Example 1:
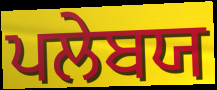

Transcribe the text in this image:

ਪਲੇਬਯ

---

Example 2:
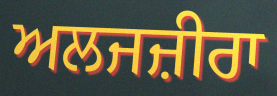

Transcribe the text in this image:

ਅਲਜਜ਼ੀਰਾ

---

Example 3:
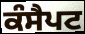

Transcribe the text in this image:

ਕੰਸੈਪਟ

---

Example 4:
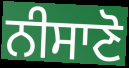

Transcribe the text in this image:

ਨੀਸਾਣੋ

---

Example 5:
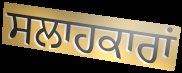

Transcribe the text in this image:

ਸਲਾਹਕਾਰਾਂ